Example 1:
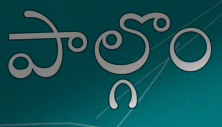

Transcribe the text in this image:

పాల్గొం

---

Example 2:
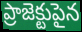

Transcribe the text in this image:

ప్రాజెక్టుపైన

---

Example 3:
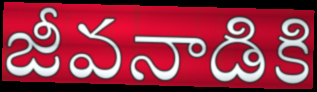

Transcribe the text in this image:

జీవనాడికి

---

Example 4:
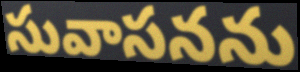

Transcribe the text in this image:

సువాసనను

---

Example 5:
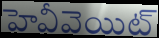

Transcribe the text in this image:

హెవీవెయిట్